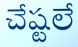
చేష్టలే